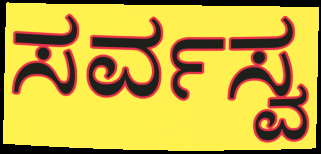
ಸರ್ವಸ್ವ